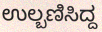
ಉಲ್ಬಣಿಸಿದ್ದ